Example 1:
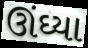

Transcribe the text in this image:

ઊંઘ્યા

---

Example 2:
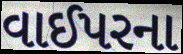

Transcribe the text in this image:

વાઈપરના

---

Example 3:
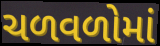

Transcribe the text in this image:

ચળવળોમાં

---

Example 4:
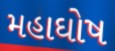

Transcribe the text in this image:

મહાઘોષ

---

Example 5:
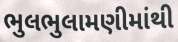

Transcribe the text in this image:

ભુલભુલામણીમાંથી